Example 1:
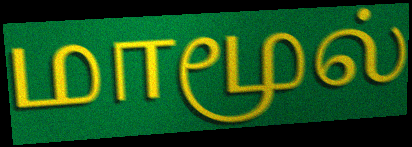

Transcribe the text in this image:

மாமூல்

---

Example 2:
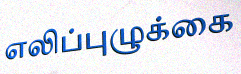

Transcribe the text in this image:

எலிப்புழுக்கை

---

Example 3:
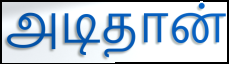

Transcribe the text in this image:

அடிதான்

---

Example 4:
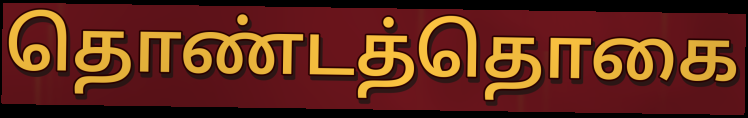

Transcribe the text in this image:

தொண்டத்தொகை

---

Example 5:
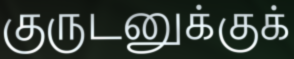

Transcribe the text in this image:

குருடனுக்குக்